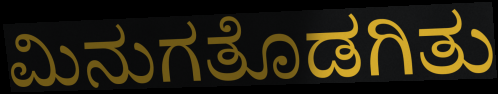
ಮಿನುಗತೊಡಗಿತು